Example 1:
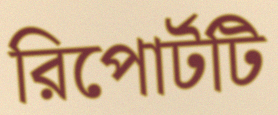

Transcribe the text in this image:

রিপোর্টটি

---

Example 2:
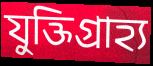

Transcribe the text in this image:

যুক্তিগ্রাহ্য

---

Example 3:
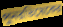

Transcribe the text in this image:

পুনরভিষেকের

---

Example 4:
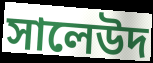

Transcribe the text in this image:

সালেউদ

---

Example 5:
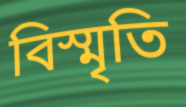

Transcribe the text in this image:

বিস্মৃতি